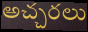
అచ్చరలు